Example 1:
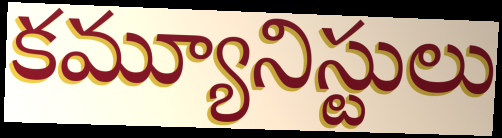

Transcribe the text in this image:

కమ్యూనిస్టులు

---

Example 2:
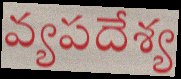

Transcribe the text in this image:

వ్యపదేశ్య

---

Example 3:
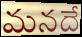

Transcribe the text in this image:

మనదే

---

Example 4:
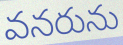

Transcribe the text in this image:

వనరును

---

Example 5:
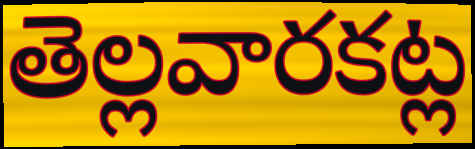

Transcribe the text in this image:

తెల్లవారకట్ల